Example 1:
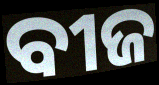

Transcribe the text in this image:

ବୀଜ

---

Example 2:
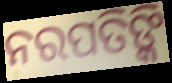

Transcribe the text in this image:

ନରପତିଙ୍କି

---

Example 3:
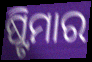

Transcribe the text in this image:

ଷ୍ଟିମାର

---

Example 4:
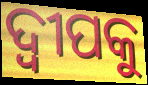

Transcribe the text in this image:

ଦ୍ୱୀପକୁ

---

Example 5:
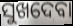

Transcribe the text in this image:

ସୁଖଦେବା